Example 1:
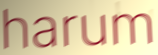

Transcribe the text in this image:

harum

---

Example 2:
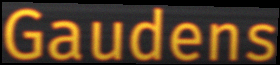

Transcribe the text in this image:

Gaudens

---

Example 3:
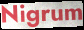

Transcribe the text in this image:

Nigrum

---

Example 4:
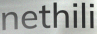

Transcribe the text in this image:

nethili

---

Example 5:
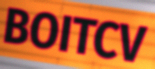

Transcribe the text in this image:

BOITCV